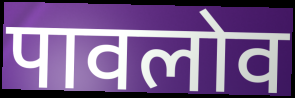
पावलोव